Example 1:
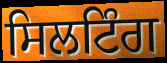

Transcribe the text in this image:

ਸਿਲਟਿੰਗ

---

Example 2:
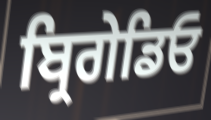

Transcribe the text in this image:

ਬ੍ਰਿਗੇਡਿਓ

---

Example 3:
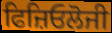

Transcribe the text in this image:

ਫਿਜ਼ਿਓਲੋਜੀ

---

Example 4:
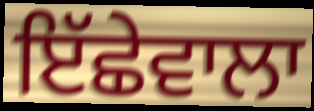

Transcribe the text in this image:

ਇੱਛੇਵਾਲਾ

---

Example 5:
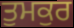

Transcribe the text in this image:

ਤੁਮਕੁਰ